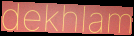
dekhlam